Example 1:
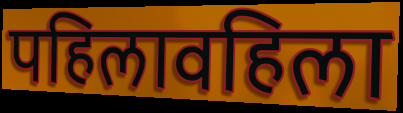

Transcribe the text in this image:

पहिलावहिला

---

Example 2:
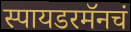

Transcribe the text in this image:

स्पायडरमॅनचं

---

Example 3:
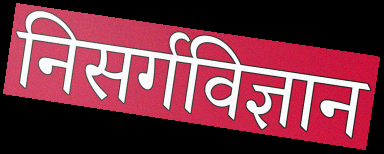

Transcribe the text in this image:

निसर्गविज्ञान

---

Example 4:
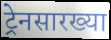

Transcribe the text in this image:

ट्रेनसारख्या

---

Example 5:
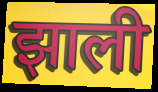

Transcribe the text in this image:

झाली